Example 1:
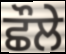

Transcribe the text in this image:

ਛੌਲੇ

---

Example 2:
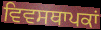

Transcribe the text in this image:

ਵਿਵਸਥਾਪਕਾਂ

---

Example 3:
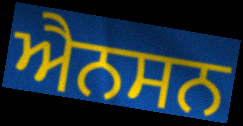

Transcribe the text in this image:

ਐਨਸਨ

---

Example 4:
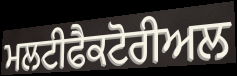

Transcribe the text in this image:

ਮਲਟੀਫੈਕਟੋਰੀਅਲ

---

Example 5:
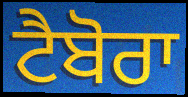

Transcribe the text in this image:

ਟੈਬੋਰਾ